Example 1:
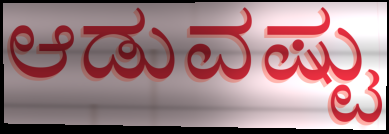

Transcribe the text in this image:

ಆಡುವಷ್ಟು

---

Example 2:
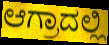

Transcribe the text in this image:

ಆಗ್ರಾದಲ್ಲಿ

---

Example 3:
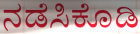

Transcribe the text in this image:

ನಡೆಸಿಕೊಡಿ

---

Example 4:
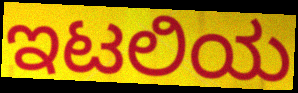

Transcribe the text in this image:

ಇಟಲಿಯ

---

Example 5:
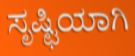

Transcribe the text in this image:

ಸೃಷ್ಟಿಯಾಗಿ